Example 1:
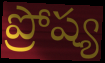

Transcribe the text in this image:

ప్రోష్య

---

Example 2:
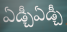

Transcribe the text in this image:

ఏడ్చీఏడ్చీ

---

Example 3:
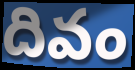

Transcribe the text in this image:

దివం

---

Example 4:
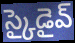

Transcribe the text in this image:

స్కైడైవ్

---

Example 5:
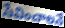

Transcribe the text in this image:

సేవించాలనే